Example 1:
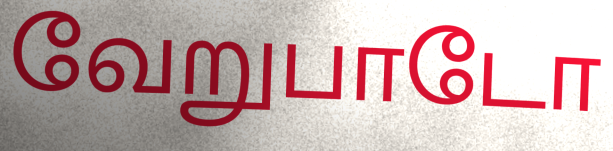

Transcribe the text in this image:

வேறுபாடோ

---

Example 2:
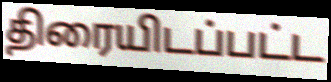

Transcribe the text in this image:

திரையிடப்பட்ட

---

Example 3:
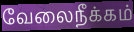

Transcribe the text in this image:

வேலைநீக்கம்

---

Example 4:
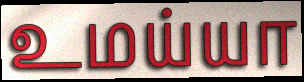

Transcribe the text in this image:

உமய்யா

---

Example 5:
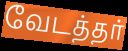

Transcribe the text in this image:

வேடத்தர்